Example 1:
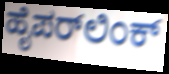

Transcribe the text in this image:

ಹೈಪರ್‌ಲಿಂಕ್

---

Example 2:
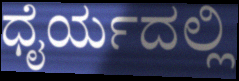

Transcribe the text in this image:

ಧೈರ್ಯದಲ್ಲಿ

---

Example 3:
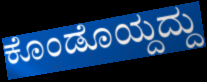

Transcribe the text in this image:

ಕೊಂಡೊಯ್ದದ್ದು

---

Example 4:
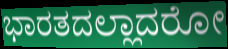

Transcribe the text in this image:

ಭಾರತದಲ್ಲಾದರೋ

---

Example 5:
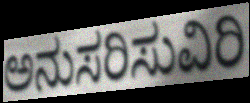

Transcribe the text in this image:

ಅನುಸರಿಸುವಿರಿ